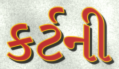
કર્ટની